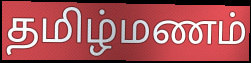
தமிழ்மணம்